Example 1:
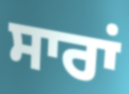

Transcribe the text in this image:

ਸਾਰਾਂ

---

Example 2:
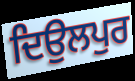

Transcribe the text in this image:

ਦਿਉਲਪੁਰ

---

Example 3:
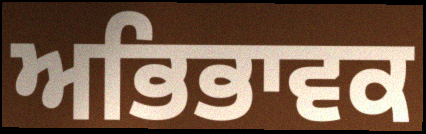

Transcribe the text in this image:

ਅਭਿਭਾਵਕ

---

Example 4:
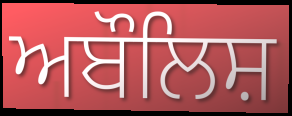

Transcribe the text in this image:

ਅਬੌਲਿਸ਼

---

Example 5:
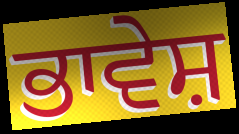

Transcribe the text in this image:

ਭਾਵੇਸ਼